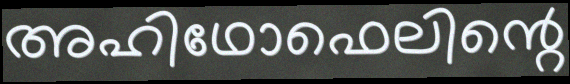
അഹിഥോഫെലിന്റെ